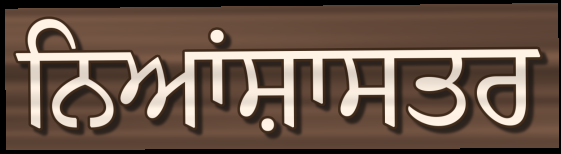
ਨਿਆਂਸ਼ਾਸਤਰ